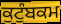
ਕੁਟੁੰਬਕਮ